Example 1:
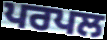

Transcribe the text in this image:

ਪਰਪਲ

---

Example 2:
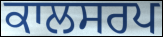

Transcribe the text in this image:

ਕਾਲਸਰਪ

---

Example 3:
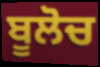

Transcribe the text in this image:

ਬੂਲੋਚ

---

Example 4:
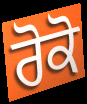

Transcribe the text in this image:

ਰੋਕੋ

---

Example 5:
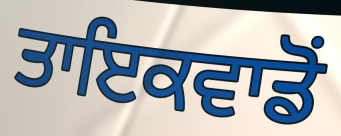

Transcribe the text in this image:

ਤਾਇਕਵਾਡੋਂ